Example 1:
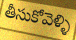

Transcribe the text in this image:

తీసుకోవెళ్ళి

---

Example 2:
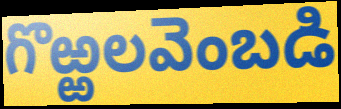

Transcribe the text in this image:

గొఱ్ఱలవెంబడి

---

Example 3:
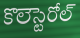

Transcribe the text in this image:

కొలెస్టెరోల్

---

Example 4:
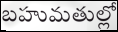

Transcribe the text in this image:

బహుమతుల్లో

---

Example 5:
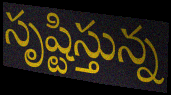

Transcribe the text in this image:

సృష్టిస్తున్న